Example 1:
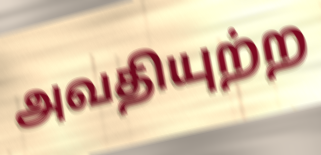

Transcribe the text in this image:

அவதியுற்ற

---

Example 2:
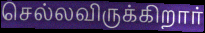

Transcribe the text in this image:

செல்லவிருக்கிறார்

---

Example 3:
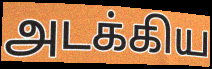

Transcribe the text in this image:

அடக்கிய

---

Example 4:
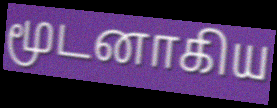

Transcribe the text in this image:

மூடனாகிய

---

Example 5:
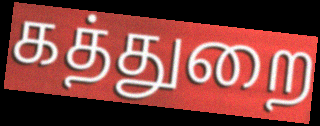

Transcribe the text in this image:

கத்துறை